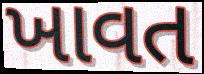
ખાવત